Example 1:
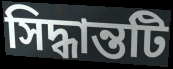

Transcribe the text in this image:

সিদ্ধান্তটি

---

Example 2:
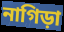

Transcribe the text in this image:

নাগিড়া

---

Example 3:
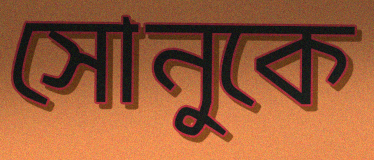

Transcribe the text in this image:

সোনুকে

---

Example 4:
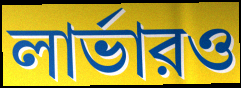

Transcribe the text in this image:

লার্ভারও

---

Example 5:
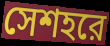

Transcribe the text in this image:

সেশহরে